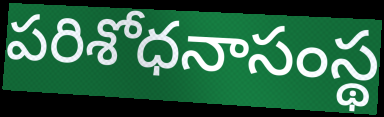
పరిశోధనాసంస్థ